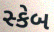
સ્કેબ